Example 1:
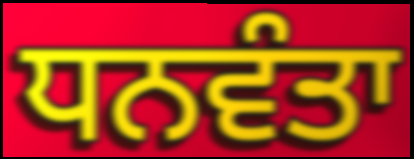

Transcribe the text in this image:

ਧਨਵੰਤਾ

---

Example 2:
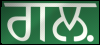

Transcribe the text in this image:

ਗਲ਼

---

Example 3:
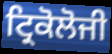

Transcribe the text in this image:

ਟ੍ਰਿਕੋਲੋਜੀ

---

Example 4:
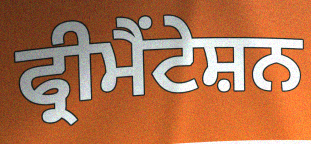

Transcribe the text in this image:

ਫ੍ਰੀਮੈਂਟੇਸ਼ਨ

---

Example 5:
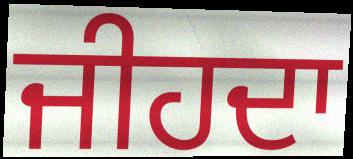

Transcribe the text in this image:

ਜੀਹਦਾ